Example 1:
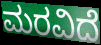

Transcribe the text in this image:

ಮರವಿದೆ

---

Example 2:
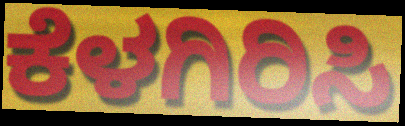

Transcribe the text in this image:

ಕೆಳಗಿರಿಸಿ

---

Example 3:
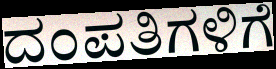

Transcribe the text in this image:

ದಂಪತಿಗಳಿಗೆ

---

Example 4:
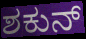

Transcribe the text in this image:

ಶಕುನ್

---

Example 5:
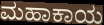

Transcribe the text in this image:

ಮಹಾಕಾಯ